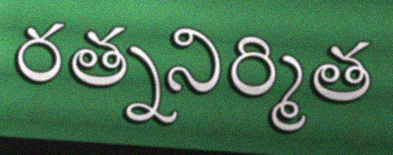
రత్ననిర్మిత